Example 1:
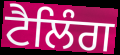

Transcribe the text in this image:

ਟੈਲਿੰਗ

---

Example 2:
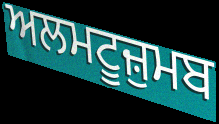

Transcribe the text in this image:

ਅਲਮਟੂਜ਼ੁਮਬ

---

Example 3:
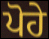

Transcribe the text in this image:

ਪੋਹੇ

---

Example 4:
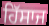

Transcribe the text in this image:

ਹਿੱਸਾਜ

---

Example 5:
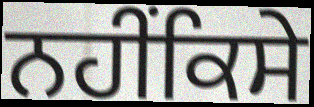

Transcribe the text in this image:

ਨਹੀਂਕਿਸੇ